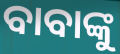
ବାବାଙ୍କୁ